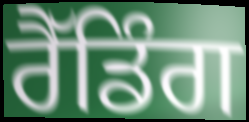
ਰੈੱਡਿੰਗ